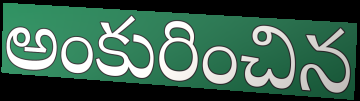
అంకురించిన